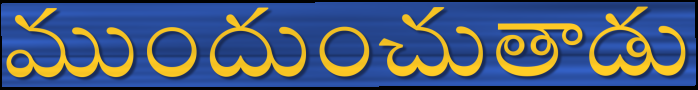
ముందుంచుతాడు